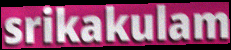
srikakulam